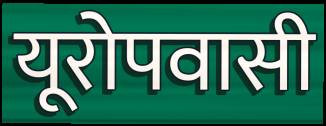
यूरोपवासी